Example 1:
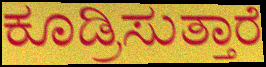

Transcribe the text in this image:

ಕೂಡ್ರಿಸುತ್ತಾರೆ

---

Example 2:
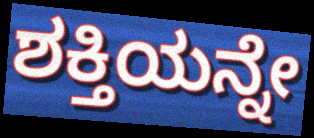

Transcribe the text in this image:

ಶಕ್ತಿಯನ್ನೇ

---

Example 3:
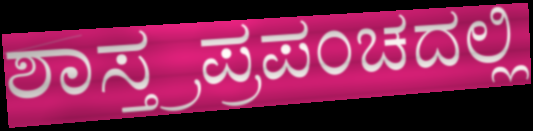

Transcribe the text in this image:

ಶಾಸ್ತ್ರಪ್ರಪಂಚದಲ್ಲಿ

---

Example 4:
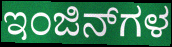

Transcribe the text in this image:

ಇಂಜಿನ್‌ಗಳ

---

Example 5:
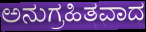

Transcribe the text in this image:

ಅನುಗ್ರಹಿತವಾದ